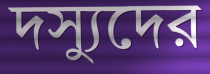
দস্যুদের